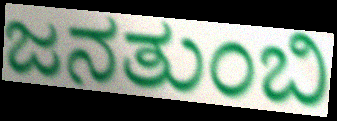
ಜನತುಂಬಿ